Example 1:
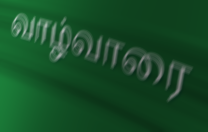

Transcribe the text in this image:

வாழ்வாரை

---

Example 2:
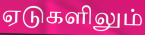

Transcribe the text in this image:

ஏடுகளிலும்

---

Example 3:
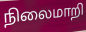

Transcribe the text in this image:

நிலைமாறி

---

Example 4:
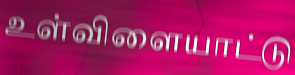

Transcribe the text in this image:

உள்விளையாட்டு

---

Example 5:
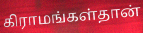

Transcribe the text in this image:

கிராமங்கள்தான்